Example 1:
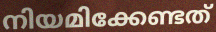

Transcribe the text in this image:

നിയമിക്കേണ്ടത്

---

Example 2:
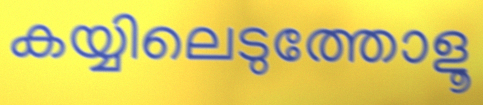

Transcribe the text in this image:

കയ്യിലെടുത്തോളൂ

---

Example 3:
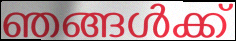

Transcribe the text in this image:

ഞങ്ങൾക്ക്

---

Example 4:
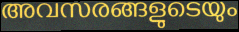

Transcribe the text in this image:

അവസരങ്ങളുടെയും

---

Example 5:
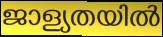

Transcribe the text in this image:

ജാള്യതയിൽ